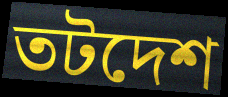
তটদেশ